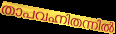
താപവഹ്നിതന്നിൽ